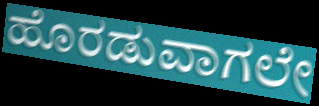
ಹೊರಡುವಾಗಲೇ